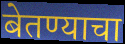
बेतण्याचा